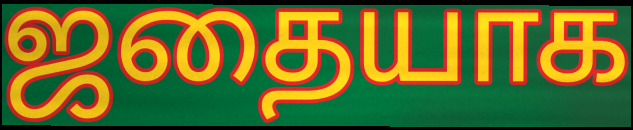
ஜதையாக